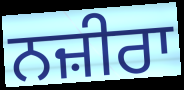
ਨਜ਼ੀਰਾ